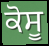
ਕੋਸੂ